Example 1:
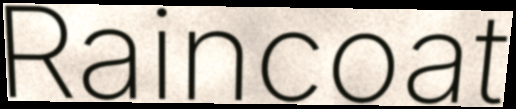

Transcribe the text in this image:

Raincoat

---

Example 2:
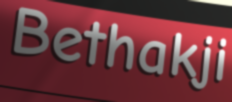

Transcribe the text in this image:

Bethakji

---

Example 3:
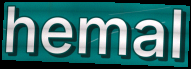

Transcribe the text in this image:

hemal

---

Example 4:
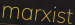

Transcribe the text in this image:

marxist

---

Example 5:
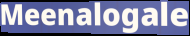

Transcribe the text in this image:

Meenalogale